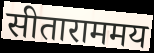
सीताराममय